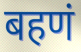
बहणं